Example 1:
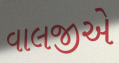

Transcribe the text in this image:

વાલજીએ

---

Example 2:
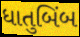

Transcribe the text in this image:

ધાતુબિંબ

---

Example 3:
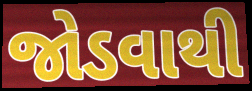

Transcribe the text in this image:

જોડવાથી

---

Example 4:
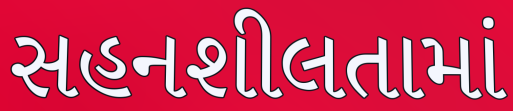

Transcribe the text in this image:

સહનશીલતામાં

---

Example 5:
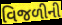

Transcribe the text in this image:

વિજળીની